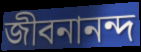
জীবনানন্দ